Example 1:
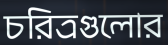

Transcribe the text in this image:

চরিত্রগুলোর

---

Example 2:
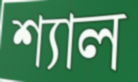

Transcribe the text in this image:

শ্যাল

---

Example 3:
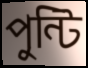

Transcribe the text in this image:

পুন্টি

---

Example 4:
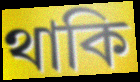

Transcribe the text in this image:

থাকি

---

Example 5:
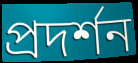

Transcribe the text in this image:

প্রদর্শন